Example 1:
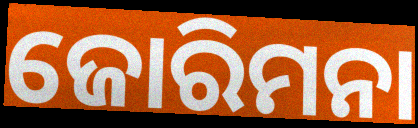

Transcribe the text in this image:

ଜୋରିମନା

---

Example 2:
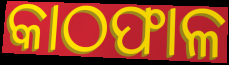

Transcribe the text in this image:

କାଠଫାଳ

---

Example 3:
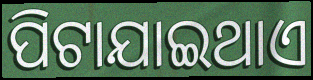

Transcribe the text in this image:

ପିଟାଯାଇଥାଏ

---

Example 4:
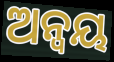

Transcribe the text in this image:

ଅନ୍ୱୟ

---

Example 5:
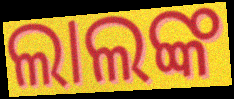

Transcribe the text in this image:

ଲାଲଙ୍କ